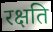
रक्षति